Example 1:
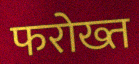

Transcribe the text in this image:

फरोख्‍त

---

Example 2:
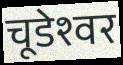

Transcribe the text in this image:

चूडेश्वर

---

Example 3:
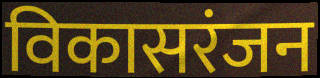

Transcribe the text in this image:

विकासरंजन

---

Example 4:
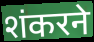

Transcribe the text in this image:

शंकरने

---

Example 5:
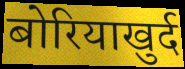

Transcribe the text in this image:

बोरियाखुर्द